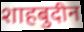
शाहबुदीन